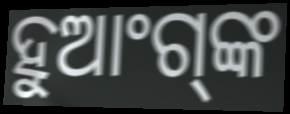
ହୁଆଂଗ୍‍ଙ୍କ